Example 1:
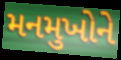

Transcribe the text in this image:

મનમુખોને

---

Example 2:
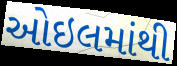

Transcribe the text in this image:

ઓઇલમાંથી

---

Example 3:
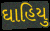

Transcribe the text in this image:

ઘાહિયુ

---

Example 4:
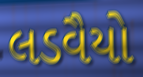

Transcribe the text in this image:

લડવૈયો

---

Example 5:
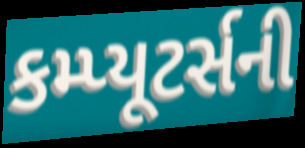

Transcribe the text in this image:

કમ્પ્યૂટર્સની